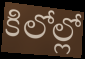
కిలోల్లో